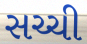
સચ્ચી